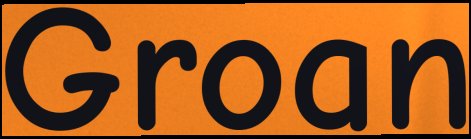
Groan